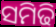
ସମିଢି